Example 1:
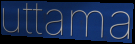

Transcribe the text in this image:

uttama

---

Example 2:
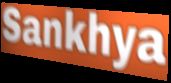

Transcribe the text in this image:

Sankhya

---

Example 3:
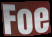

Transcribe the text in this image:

Foe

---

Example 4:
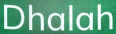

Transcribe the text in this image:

Dhalah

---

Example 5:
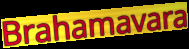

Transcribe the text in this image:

Brahamavara